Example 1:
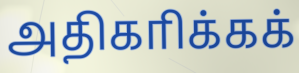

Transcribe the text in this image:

அதிகரிக்கக்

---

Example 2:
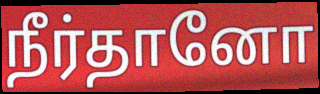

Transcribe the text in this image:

நீர்தானோ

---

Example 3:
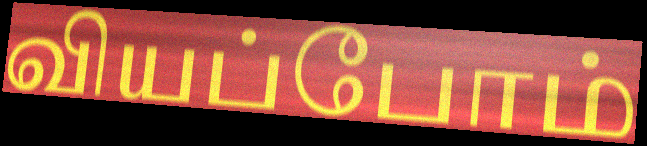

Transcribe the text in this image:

வியப்போம்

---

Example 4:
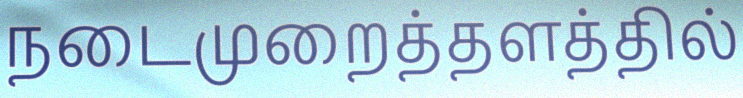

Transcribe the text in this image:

நடைமுறைத்தளத்தில்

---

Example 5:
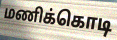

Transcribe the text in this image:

மணிக்கொடி